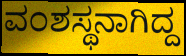
ವಂಶಸ್ಥನಾಗಿದ್ದ